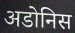
अडोनिस